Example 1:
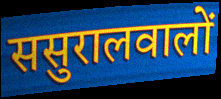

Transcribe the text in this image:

ससुरालवालों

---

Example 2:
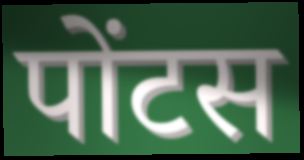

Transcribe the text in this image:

पोंटस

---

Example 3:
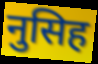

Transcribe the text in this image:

नुसिह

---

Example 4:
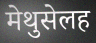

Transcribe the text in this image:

मेथुसेलह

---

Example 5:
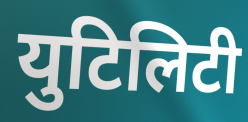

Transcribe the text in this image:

युटिलिटी